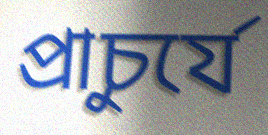
প্রাচুর্যে